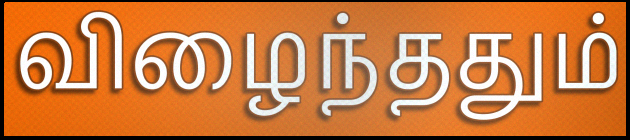
விழைந்ததும்